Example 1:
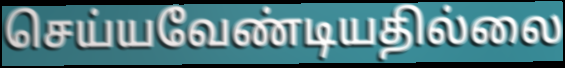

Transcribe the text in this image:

செய்யவேண்டியதில்லை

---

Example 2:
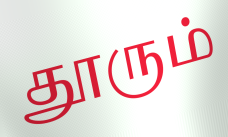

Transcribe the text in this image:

தூரும்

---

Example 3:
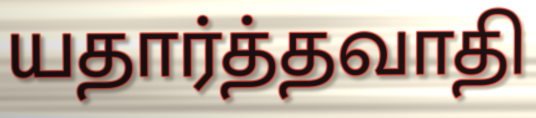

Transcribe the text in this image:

யதார்த்தவாதி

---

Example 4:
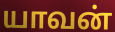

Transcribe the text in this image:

யாவன்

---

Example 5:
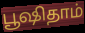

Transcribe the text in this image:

பூஷிதாம்